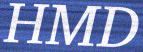
HMD